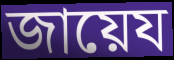
জায়েয